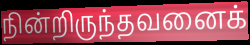
நின்றிருந்தவனைக்